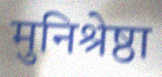
मुनिश्रेष्ठा